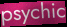
psychic